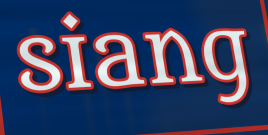
siang